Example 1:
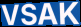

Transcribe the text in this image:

VSAK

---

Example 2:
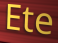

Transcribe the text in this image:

Ete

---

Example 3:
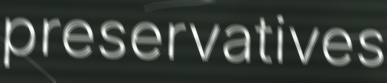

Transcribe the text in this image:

preservatives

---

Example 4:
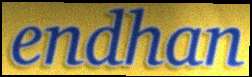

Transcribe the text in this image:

endhan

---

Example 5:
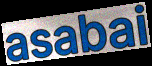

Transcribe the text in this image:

asabai